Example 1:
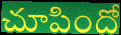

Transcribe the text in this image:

చూపిందో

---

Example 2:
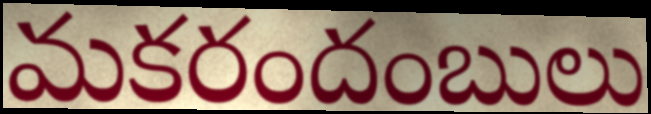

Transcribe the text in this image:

మకరందంబులు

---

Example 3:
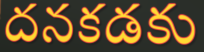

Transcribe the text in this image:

దనకడకు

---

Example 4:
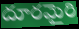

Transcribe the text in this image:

దూరమైరి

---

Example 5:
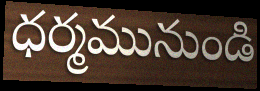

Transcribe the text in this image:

ధర్మమునుండి